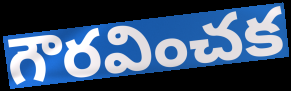
గౌరవించక